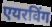
एयरविंग